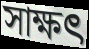
সাক্ষৎ